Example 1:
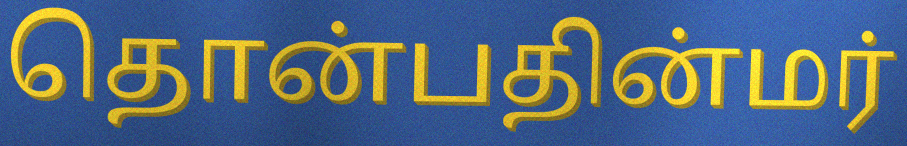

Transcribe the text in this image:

தொன்பதின்மர்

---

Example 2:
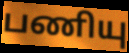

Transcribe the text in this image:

பணியு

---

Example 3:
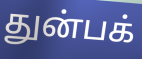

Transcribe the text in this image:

துன்பக்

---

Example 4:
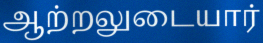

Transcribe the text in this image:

ஆற்றலுடையார்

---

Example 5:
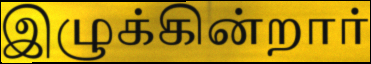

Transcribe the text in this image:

இழுக்கின்றார்